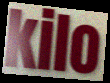
kilo